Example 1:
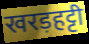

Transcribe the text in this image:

खरड़हट्टी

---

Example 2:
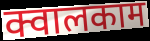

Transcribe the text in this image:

क्वालकाम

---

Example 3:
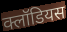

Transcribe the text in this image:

क्लॉडियस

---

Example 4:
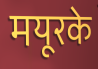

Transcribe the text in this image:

मयूरके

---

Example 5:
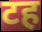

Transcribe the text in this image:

टह